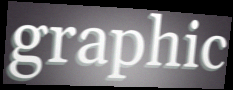
graphic